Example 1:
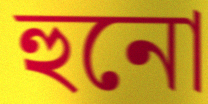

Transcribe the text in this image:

হুনো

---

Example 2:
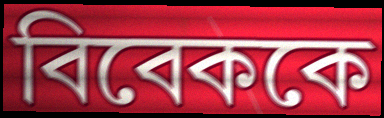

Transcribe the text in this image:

বিবেককে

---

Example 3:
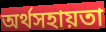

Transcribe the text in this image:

অর্থসহায়তা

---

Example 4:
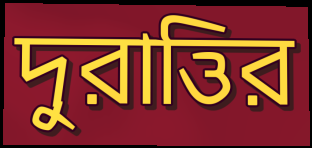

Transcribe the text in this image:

দুরাত্তির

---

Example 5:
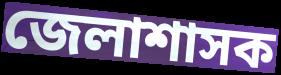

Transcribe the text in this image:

জেলাশাসক